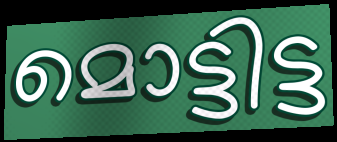
മൊട്ടിട്ട